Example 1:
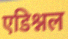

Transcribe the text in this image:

एडिश्नल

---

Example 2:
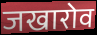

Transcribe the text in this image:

जखारोव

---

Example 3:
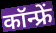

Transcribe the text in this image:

कॉन्फ्रें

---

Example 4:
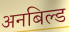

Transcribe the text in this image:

अनबिल्ड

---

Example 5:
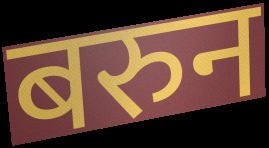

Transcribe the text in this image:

बरुन